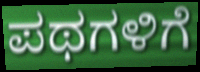
ಪಥಗಳಿಗೆ